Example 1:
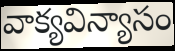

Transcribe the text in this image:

వాక్యవిన్యాసం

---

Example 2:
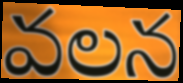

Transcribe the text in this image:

వలన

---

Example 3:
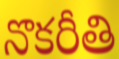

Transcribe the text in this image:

నొకరీతి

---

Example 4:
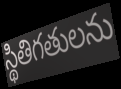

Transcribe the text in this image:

స్థితిగతులను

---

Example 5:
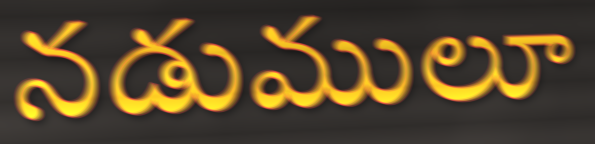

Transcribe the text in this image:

నడుములూ